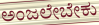
ಅಂಜಲೇಬೇಕು